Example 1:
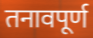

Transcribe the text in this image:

तनावपूर्ण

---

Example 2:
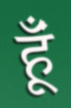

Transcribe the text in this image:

हूंँ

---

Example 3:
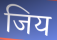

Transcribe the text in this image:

जिय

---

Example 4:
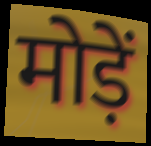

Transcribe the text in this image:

मोड़ें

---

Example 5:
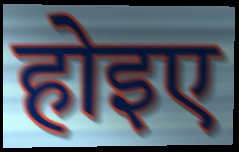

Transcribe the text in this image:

होइए